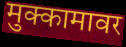
मुक्कामावर